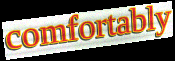
comfortably